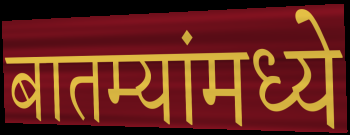
बातम्यांमध्ये